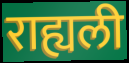
राह्यली